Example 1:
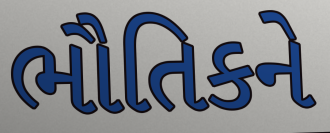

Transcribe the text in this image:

ભૌતિકને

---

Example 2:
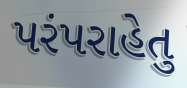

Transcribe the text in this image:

પરંપરાહેતુ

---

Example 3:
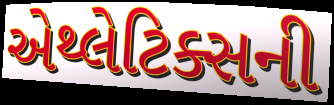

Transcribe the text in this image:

એથ્લેટિક્સની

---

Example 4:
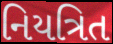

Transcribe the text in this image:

નિયત્રિત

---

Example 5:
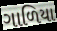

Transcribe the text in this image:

ગાળિયા